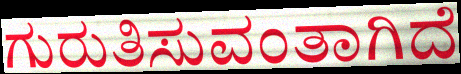
ಗುರುತಿಸುವಂತಾಗಿದೆ